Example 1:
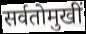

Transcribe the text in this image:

सर्वतोमुखीं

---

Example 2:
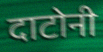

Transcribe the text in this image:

दाटोनी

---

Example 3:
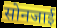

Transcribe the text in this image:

सोनजाई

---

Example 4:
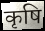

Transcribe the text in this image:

कृषि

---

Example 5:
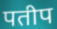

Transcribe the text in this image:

पतीप